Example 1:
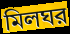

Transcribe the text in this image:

মিলঘর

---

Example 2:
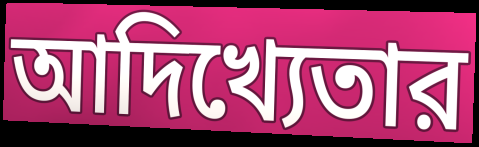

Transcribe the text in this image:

আদিখ্যেতার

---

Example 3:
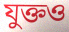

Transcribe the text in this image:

যুক্তও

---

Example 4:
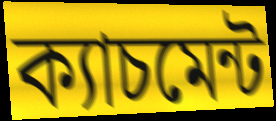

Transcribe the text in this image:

ক্যাচমেন্ট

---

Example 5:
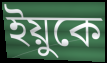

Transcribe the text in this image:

ইয়ুকে